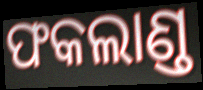
ଫକଲାଣ୍ଡ